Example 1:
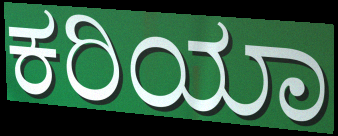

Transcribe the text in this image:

ಕರಿಯಾ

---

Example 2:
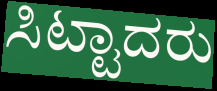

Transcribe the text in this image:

ಸಿಟ್ಟಾದರು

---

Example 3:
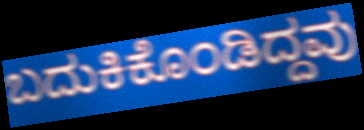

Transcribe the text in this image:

ಬದುಕಿಕೊಂಡಿದ್ದವು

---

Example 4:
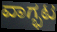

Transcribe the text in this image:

ವಾಗ್ಭಟ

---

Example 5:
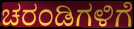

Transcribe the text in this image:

ಚರಂಡಿಗಳಿಗೆ